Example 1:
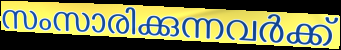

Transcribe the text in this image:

സംസാരിക്കുന്നവർക്ക്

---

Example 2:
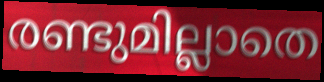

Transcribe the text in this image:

രണ്ടുമില്ലാതെ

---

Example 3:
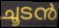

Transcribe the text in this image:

ചൂടൻ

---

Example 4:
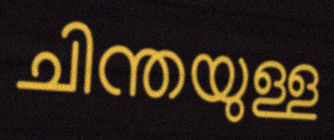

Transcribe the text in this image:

ചിന്തയുള്ള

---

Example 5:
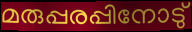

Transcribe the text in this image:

മരുപ്പരപ്പിനോടു്